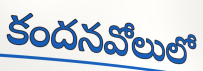
కందనవోలులో